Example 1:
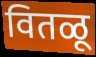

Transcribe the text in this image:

वितळू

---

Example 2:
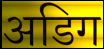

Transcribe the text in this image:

अडिग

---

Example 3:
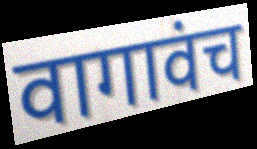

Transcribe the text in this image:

वागावंच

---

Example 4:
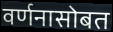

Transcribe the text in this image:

वर्णनासोबत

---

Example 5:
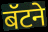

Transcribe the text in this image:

बॅटने